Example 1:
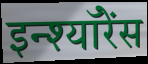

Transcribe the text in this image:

इन्श्यॉरेंस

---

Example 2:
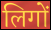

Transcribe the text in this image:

लिगों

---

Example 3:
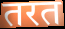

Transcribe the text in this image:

तरत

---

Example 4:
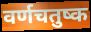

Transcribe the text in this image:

वर्णचतुष्क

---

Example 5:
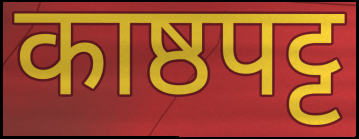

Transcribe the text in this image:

काष्ठपट्ट